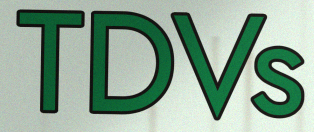
TDVs